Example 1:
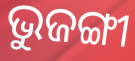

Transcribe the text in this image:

ଭୁଜଙ୍ଗୀ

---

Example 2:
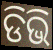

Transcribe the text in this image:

ଡିଭି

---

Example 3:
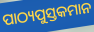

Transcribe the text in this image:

ପାଠ୍ୟପୁସ୍ତକମାନ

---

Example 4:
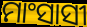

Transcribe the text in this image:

ମାଂସାସୀ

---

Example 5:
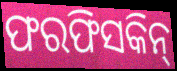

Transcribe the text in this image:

ଫରଫିସକିନ୍